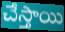
చేస్తాయి